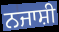
ਨਜਾਸ਼ੀ